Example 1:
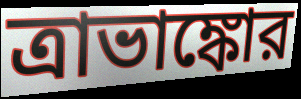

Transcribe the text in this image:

ত্রাভাঙ্কোর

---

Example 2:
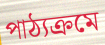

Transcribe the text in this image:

পাঠ্যক্রমে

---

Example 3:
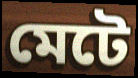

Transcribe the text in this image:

মেটে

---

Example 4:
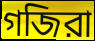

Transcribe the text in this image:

গজিরা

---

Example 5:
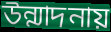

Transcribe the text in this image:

উন্মাদনায়